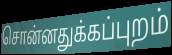
சொன்னதுக்கப்புறம்